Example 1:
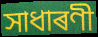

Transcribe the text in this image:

সাধাৰণী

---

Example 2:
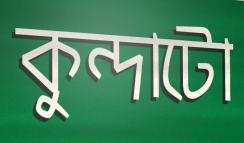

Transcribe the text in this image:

কুন্দাটো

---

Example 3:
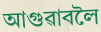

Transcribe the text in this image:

আগুৱাবলৈ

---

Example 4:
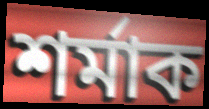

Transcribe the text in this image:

শৰ্মাক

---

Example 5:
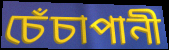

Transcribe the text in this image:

চেঁচাপানী